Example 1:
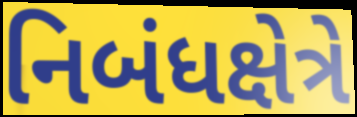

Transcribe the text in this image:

નિબંધક્ષેત્રે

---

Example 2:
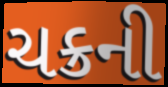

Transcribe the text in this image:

ચક્રની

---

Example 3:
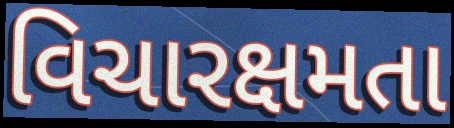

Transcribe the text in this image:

વિચારક્ષમતા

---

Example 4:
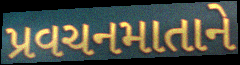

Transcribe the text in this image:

પ્રવચનમાતાને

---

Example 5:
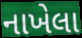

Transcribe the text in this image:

નાખેલા